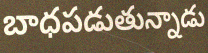
బాధపడుతున్నాడు